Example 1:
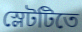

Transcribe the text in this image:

স্লেটটিতে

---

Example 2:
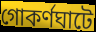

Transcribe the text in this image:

গোকর্ণঘাটে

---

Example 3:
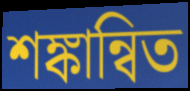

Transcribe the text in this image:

শঙ্কান্বিত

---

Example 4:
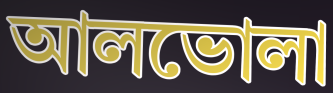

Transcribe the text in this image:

আলভোলা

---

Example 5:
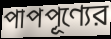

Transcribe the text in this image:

পাপপূণ্যের